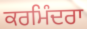
ਕਰਮਿੰਦਰਾ